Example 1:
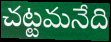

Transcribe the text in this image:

చట్టమనేది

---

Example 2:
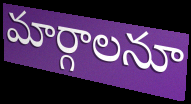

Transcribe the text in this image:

మార్గాలనూ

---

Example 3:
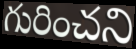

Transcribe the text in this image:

గురించని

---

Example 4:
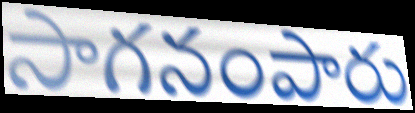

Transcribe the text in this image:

సాగనంపారు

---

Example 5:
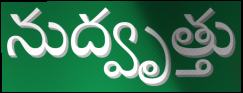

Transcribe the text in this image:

నుద్వృత్తు